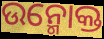
ଉନ୍ମୋକ୍ତ